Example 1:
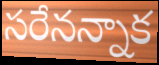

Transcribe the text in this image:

సరేనన్నాక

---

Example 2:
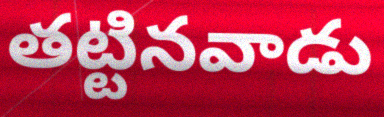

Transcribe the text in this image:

తట్టినవాడు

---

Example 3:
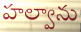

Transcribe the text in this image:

హల్వాను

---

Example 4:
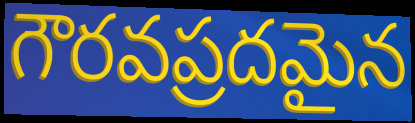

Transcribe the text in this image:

గౌరవప్రదమైన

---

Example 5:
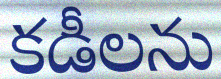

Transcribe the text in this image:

కడీలను